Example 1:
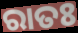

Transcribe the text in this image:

ରାତଃ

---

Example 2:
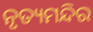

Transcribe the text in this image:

ନୃତ୍ୟମନ୍ଦିର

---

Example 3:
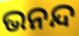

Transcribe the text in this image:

ଭନନ୍ଦ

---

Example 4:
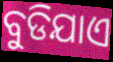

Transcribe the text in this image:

ବୁଡିଯାଏ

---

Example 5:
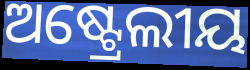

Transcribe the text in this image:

ଅଷ୍ଟ୍ରେଲୀୟ